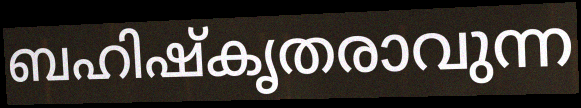
ബഹിഷ്കൃതരാവുന്ന